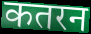
कतरन